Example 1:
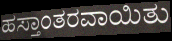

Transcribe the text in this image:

ಹಸ್ತಾಂತರವಾಯಿತು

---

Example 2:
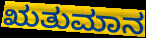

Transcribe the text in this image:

ಋತುಮಾನ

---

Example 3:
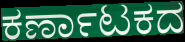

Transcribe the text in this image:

ಕರ್ಣಾಟಕದ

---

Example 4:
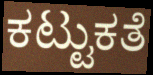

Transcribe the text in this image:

ಕಟ್ಟುಕತೆ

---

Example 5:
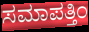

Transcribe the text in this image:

ಸಮಾಪತ್ತಿಂ